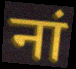
नां